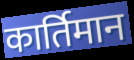
कार्तिमान